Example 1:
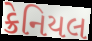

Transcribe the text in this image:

ક્રેનિયલ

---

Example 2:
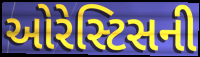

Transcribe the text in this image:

ઓરેસ્ટિસની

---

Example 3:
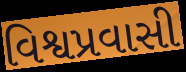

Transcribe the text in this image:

વિશ્વપ્રવાસી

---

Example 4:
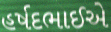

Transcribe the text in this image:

હર્ષદભાઈએ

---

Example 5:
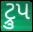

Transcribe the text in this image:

ટ્રુપ